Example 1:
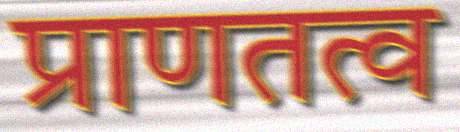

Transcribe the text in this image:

प्राणतत्व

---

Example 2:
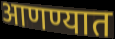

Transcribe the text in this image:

आणण्यात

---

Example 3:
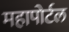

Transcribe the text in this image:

महापोर्टल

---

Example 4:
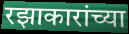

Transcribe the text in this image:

रझाकारांच्या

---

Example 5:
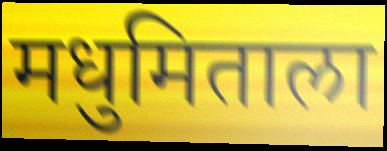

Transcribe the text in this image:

मधुमिताला